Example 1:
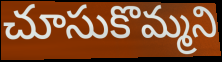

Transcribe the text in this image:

చూసుకొమ్మని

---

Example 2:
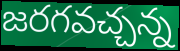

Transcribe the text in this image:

జరగవచ్చన్న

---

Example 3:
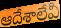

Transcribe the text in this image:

ఆదేశాలేవీ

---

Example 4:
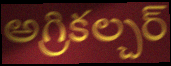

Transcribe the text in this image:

అగ్రికల్చర్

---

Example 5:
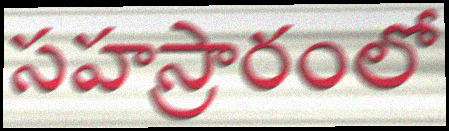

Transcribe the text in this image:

సహస్రారంలో